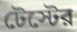
টেস্টের